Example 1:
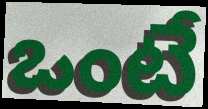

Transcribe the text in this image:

ఒంటే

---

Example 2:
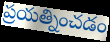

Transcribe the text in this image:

ప్రయత్నించడం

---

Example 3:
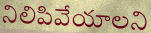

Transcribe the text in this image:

నిలిపివేయాలని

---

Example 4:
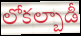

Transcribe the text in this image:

లోకల్బాడీ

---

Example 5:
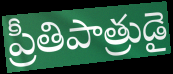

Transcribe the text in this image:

ప్రీతిపాత్రుడై